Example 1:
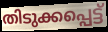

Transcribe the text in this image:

തിടുക്കപ്പെട്ട്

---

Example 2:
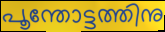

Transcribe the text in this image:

പൂന്തോട്ടത്തിനു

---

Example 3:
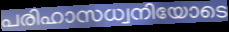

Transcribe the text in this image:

പരിഹാസധ്വനിയോടെ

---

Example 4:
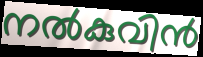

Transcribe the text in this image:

നൽകുവിൻ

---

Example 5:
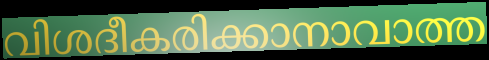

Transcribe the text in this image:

വിശദീകരിക്കാനാവാത്ത